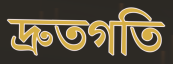
দ্রুতগতি